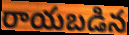
రాయబడిన